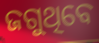
ଜଗୁଥିବେ